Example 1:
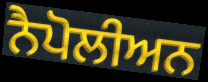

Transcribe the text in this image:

ਨੈਪੋਲੀਅਨ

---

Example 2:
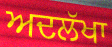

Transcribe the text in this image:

ਅਦਲੱਖਾ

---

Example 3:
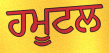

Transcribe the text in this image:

ਹਮੂਟਲ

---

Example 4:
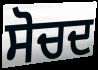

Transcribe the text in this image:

ਸੋਚਦ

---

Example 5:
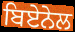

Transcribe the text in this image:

ਬਿਏਨੇਲ